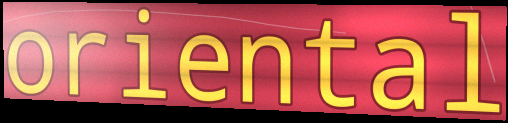
oriental